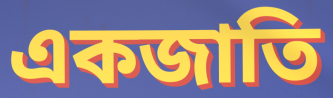
একজাতি